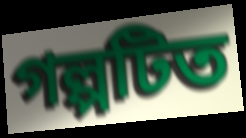
গল্পটিত